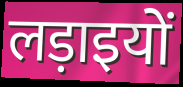
लड़ाइयों